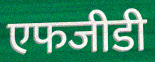
एफजीडी